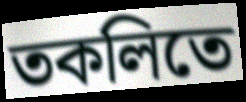
তকলিতে